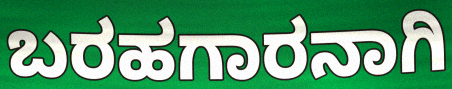
ಬರಹಗಾರನಾಗಿ